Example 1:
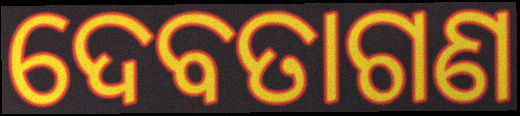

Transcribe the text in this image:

ଦେବତାଗଣ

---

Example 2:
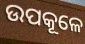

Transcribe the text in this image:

ଉପକୂଳେ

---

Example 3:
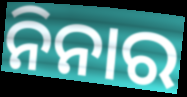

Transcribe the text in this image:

ନିନାର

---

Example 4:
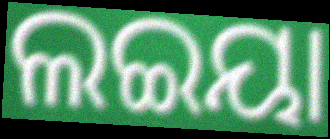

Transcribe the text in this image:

ଲଇୟା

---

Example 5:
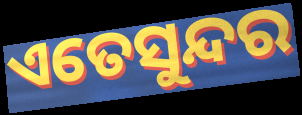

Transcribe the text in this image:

ଏତେସୁନ୍ଦର